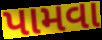
પામવા